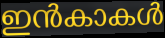
ഇൻകാകൾ